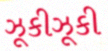
ઝૂકીઝૂકી